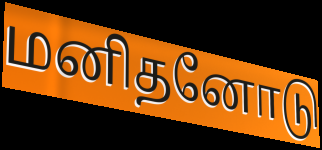
மனிதனோடு